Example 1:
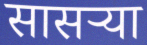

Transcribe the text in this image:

सासर्‍या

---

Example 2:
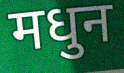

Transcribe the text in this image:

मधुन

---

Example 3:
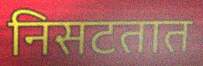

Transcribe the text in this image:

निसटतात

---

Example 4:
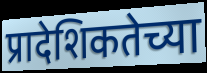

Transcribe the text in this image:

प्रादेशिकतेच्या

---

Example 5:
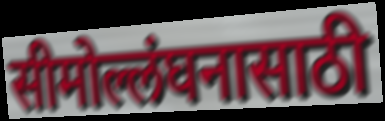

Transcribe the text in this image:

सीमोल्लंघनासाठी